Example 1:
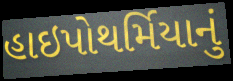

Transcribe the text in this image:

હાઇપોથર્મિયાનું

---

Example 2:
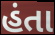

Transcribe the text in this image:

હંતા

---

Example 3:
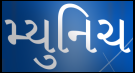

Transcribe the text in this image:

મ્યુનિચ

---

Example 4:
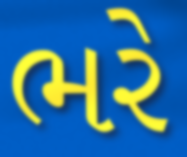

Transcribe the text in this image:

ભરે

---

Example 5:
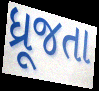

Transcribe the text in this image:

ધ્રૂજતા